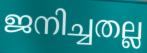
ജനിച്ചതല്ല